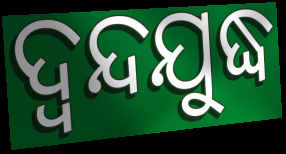
ଦ୍ୱନ୍ଦଯୁଦ୍ଧ